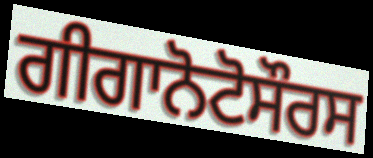
ਗੀਗਾਨੋਟੋਸੌਰਸ